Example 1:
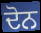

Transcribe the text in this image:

ਦੋਨ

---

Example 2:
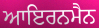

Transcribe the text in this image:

ਆਇਰਨਮੈਨ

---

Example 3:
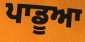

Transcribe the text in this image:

ਪਾਡੂਆ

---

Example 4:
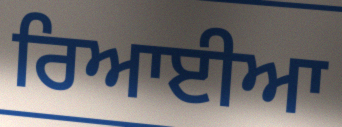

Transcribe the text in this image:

ਰਿਆਈਆ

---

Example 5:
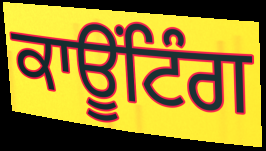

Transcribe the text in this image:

ਕਾਊਂਟਿੰਗ